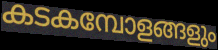
കടകമ്പോളങ്ങളും